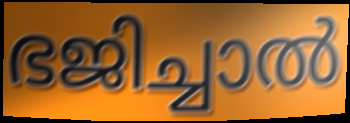
ഭജിച്ചാൽ